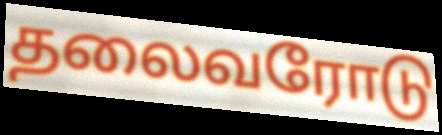
தலைவரோடு